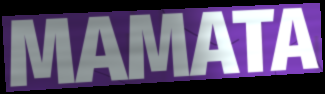
MAMATA